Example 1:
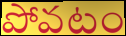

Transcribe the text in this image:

పోవటం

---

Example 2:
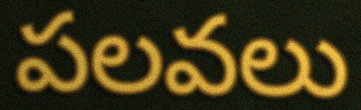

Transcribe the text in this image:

పలవలు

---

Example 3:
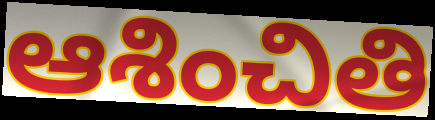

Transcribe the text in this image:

ఆశించితి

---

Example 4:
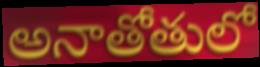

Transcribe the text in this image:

అనాతోతులో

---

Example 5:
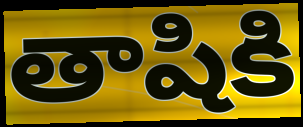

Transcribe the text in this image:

తాషికి